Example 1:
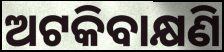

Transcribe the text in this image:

ଅଟକିବାକ୍ଷଣି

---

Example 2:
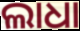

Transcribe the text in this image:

ଲାଧା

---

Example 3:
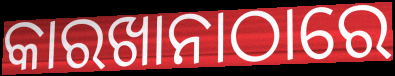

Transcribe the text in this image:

କାରଖାନାଠାରେ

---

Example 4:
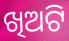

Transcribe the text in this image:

ଖିଅଟି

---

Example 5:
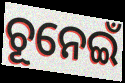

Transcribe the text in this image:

ଚୂନେଇଁ